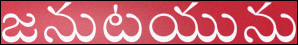
జనుటయును